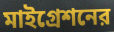
মাইগ্রেশনের